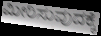
ಮೀರಿಸುವುದಕ್ಕೆ